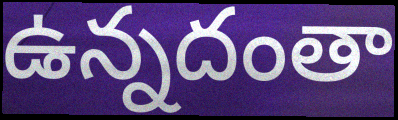
ఉన్నదంతా